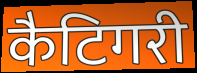
कैटिगरी